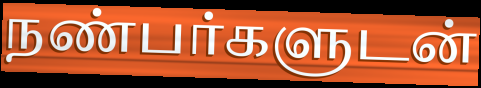
நண்பர்களுடன்